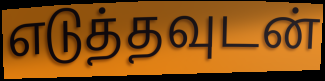
எடுத்தவுடன்